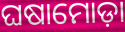
ଘଷାମୋଡ଼ା